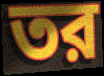
তর